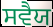
ਸਵੈਯ